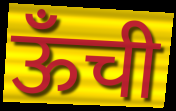
ऊँची